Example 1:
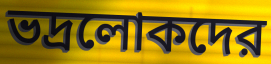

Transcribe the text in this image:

ভদ্রলোকদের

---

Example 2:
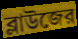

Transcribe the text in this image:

ব্লাউজের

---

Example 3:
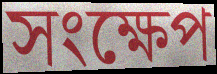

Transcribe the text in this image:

সংক্ষেপ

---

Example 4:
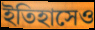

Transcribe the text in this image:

ইতিহাসেও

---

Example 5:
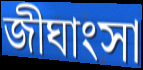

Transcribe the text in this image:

জীঘাংসা